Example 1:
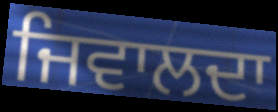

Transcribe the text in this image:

ਜਿਵਾਲਦਾ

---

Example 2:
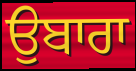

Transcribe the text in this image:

ਉਬਾਰਾ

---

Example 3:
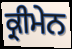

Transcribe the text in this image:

ਕ੍ਰੀਮੇਨ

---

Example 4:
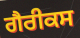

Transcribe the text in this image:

ਗੈਰੀਕਸ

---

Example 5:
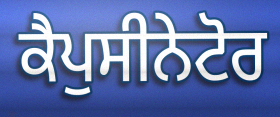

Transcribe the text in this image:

ਕੈਪੁਸੀਨੇਟੋਰ